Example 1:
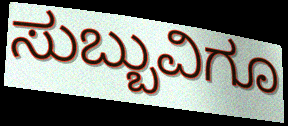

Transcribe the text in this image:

ಸುಬ್ಬುವಿಗೂ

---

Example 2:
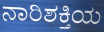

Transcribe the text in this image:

ನಾರಿಶಕ್ತಿಯ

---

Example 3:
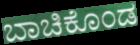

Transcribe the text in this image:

ಬಾಚಿಕೊಂಡ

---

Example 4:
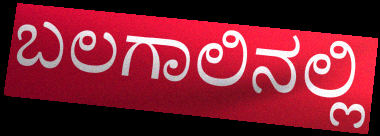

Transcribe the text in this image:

ಬಲಗಾಲಿನಲ್ಲಿ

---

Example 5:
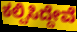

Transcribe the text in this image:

ಕಲ್ಪಿಸಿದ್ದೇವೆ